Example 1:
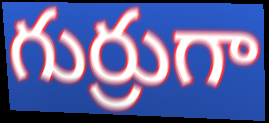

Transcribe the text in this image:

గుర్రుగా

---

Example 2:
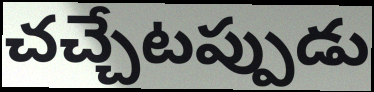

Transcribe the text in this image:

చచ్చేటప్పుడు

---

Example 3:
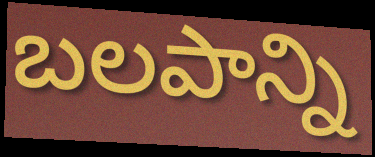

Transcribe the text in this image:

బలపాన్ని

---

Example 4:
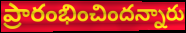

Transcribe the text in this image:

ప్రారంభించిందన్నారు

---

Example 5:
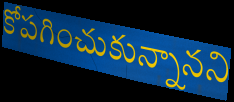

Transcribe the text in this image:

కోపగించుకున్నానని